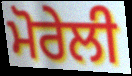
ਮੋਰੇਲੀ